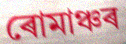
ৰোমাঞ্চৰ